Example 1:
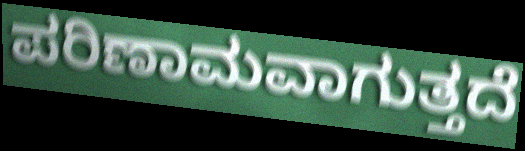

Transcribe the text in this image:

ಪರಿಣಾಮವಾಗುತ್ತದೆ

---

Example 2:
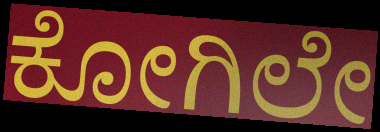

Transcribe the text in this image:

ಕೋಗಿಲೇ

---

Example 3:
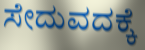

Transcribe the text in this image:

ಸೇದುವದಕ್ಕೆ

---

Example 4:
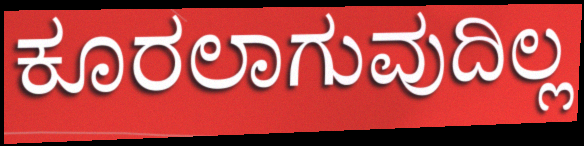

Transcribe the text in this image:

ಕೂರಲಾಗುವುದಿಲ್ಲ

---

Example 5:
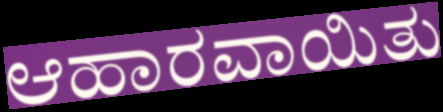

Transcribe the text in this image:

ಆಹಾರವಾಯಿತು